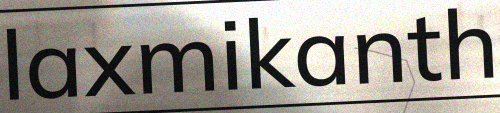
laxmikanth